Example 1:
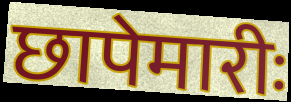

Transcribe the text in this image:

छापेमारीः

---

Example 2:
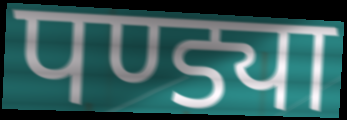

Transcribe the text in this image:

पण्ड्या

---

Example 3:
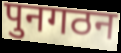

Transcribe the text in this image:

पुनगठन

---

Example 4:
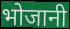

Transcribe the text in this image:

भोजानी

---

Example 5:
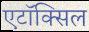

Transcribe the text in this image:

एटॉक्सिल